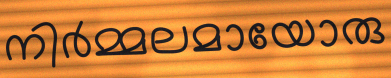
നിർമ്മലമായോരു